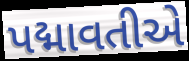
પદ્માવતીએ